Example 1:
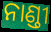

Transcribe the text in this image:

ନାଣ୍ଡୀ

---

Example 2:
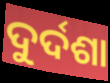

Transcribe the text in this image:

ଦୁର୍ଦଶା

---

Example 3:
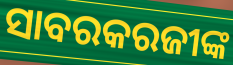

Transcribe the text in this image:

ସାବରକରଜୀଙ୍କ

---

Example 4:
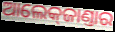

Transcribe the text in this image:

ଆଲେକ୍‌ଜାଣ୍ତାର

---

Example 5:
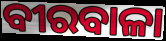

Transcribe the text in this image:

ବୀରବାଳା